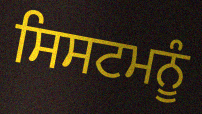
ਸਿਸਟਮਨੂੰ